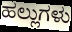
ಹಲ್ಲುಗಳು